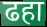
ढहा